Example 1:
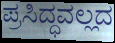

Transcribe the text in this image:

ಪ್ರಸಿದ್ಧವಲ್ಲದ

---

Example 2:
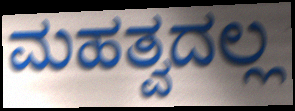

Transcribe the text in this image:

ಮಹತ್ವದಲ್ಲ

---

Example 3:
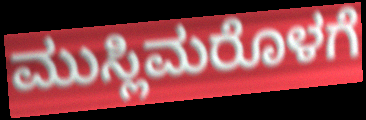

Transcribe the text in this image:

ಮುಸ್ಲಿಮರೊಳಗೆ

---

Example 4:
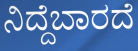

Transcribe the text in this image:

ನಿದ್ದೆಬಾರದೆ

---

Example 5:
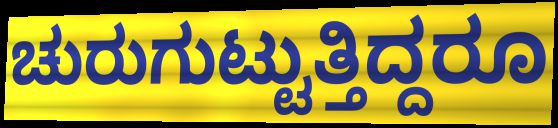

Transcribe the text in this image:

ಚುರುಗುಟ್ಟುತ್ತಿದ್ದರೂ